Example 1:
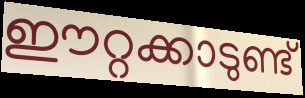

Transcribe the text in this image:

ഈറ്റക്കാടുണ്ട്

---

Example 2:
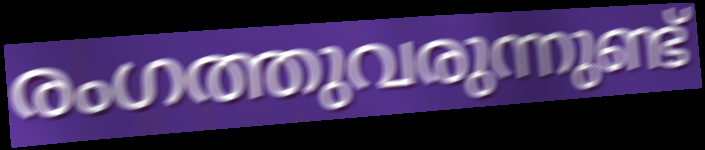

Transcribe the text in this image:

രംഗത്തുവരുന്നുണ്ട്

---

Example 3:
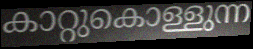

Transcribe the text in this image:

കാറ്റുകൊള്ളുന്ന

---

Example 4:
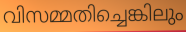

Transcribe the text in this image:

വിസമ്മതിച്ചെങ്കിലും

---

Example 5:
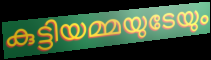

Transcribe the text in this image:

കുട്ടിയമ്മയുടേയും